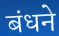
बंधने